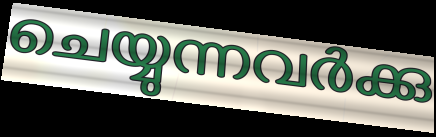
ചെയ്യുന്നവർക്കു